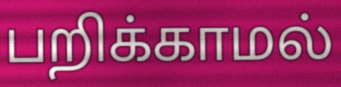
பறிக்காமல்